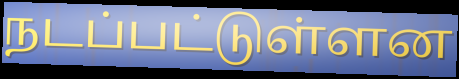
நடப்பட்டுள்ளன